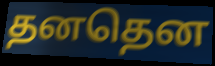
தனதென